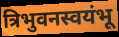
त्रिभुवनस्वयंभू